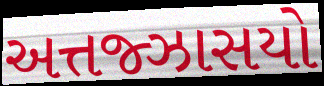
અત્તજ્ઝાસયો